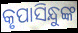
କୃପାସିନ୍ଧୁଙ୍କ